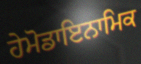
ਹੇਮੋਡਾਇਨਾਮਿਕ